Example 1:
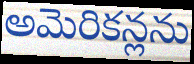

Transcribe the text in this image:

అమెరికన్లను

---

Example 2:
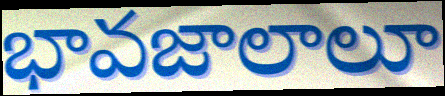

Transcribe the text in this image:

భావజాలాలూ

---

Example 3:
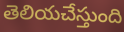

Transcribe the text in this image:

తెలియచేస్తుంది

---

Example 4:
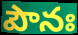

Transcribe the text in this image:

పౌనః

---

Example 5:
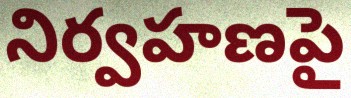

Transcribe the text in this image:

నిర్వహణపై